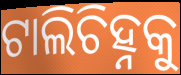
ଟାଲିଚିହ୍ନକୁ